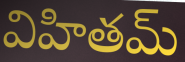
విహితమ్